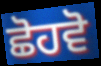
ਛੋਹਵੋ